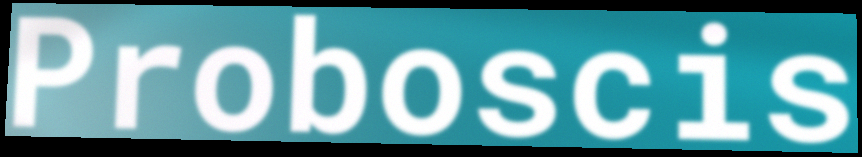
Proboscis